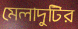
মেলাদুটির